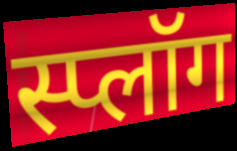
स्प्लॉग